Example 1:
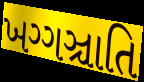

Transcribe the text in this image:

ખગ્ગઞ્ચાતિ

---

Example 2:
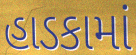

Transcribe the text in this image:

હાડકામાં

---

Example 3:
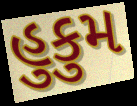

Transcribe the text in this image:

હુકુમ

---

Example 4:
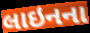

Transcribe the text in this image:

લાઇનના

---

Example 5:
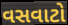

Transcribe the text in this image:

વસવાટો